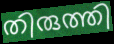
തിരുത്തി